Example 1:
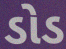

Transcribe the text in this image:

ડોડ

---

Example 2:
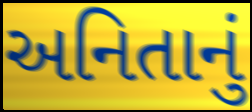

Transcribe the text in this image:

અનિતાનું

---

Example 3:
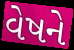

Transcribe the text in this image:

વેષને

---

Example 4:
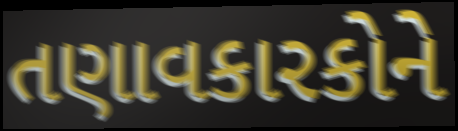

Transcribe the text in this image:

તણાવકારકોને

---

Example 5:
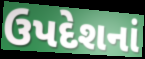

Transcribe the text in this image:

ઉપદેશનાં